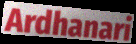
Ardhanari